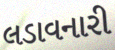
લડાવનારી